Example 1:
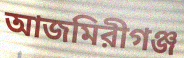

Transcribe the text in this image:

আজমিরীগঞ্জ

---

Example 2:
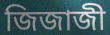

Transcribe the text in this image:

জিজাজী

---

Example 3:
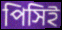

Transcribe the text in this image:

পিসিই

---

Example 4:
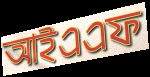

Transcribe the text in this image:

আইএএফ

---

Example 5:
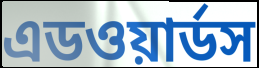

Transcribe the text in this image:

এডওয়ার্ডস